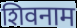
शिवनाम